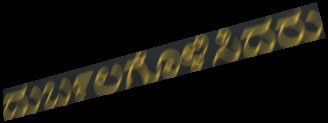
ದುರ್ಬಲಗೊಳಿಸಿದರು